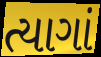
ત્યાગાં